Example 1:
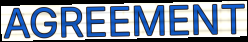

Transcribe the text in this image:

AGREEMENT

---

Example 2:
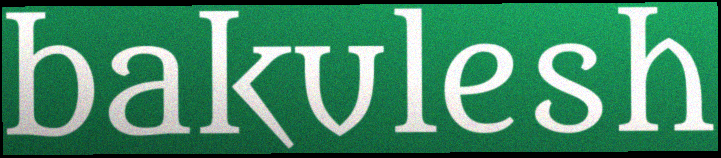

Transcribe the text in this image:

bakulesh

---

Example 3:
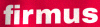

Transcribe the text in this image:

firmus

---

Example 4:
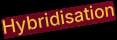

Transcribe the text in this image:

Hybridisation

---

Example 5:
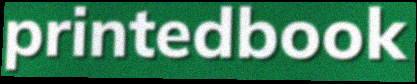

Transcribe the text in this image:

printedbook